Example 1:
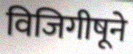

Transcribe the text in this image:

विजिगीषूने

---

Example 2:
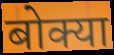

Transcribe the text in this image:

बोक्या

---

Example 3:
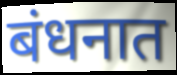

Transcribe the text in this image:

बंधनात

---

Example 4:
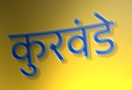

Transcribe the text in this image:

कुरवंडे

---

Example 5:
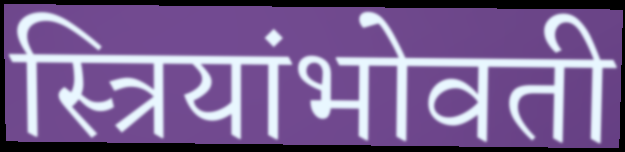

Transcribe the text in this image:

स्त्रियांभोवती